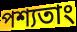
পশ্যতাং